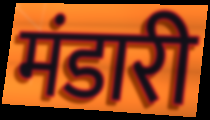
मंडारी